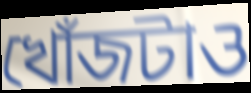
খোঁজটাও